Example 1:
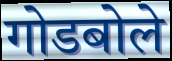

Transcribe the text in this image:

गोडबोले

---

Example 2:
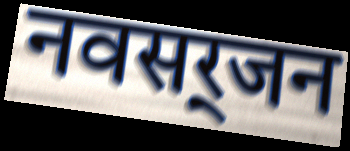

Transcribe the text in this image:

नवसर्जन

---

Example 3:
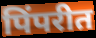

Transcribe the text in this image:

पिंपरीत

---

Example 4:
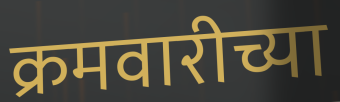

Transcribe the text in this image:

क्रमवारीच्या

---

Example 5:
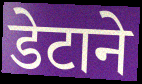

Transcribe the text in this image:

डेटाने